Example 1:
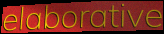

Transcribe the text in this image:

elaborative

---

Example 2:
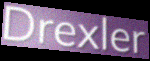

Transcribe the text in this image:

Drexler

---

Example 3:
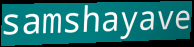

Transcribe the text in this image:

samshayave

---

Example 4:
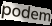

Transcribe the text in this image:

podem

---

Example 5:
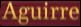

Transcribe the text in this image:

Aguirre